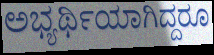
ಅಭ್ಯರ್ಥಿಯಾಗಿದ್ದರೂ